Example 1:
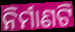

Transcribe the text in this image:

ନିର୍ମାଣଟି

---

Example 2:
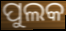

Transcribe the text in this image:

ପୁଲକ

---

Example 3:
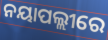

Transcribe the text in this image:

ନୟାପଲ୍ଲୀରେ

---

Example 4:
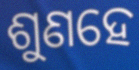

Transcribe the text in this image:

ଶୁଣହେ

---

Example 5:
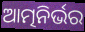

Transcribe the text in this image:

ଆତ୍ମନିର୍ଭର